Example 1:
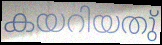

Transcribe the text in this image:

കയറിയതു്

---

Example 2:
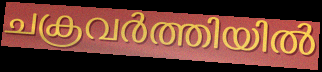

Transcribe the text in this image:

ചക്രവർത്തിയിൽ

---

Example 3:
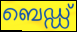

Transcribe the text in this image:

ബെഡ്ഡ്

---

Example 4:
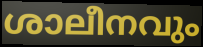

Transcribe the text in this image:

ശാലീനവും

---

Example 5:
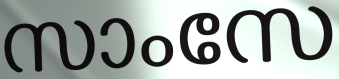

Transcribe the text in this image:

സാംസേ